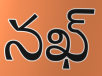
నఖ్